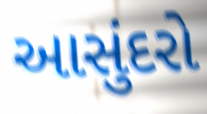
આસુંદરો